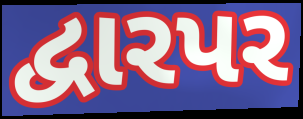
દ્વારપર